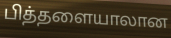
பித்தளையாலான